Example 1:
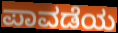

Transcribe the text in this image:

ಪಾವಡೆಯ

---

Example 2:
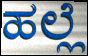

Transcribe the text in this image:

ಹಲ್ಲೆ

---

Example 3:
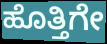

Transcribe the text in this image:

ಹೊತ್ತಿಗೇ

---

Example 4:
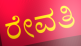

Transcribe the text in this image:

ರೇವತಿ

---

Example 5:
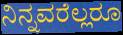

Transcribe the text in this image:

ನಿನ್ನವರೆಲ್ಲರೂ